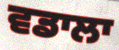
ਵਡਾਲਾ